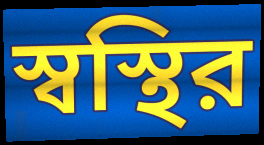
স্বস্থির